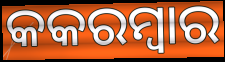
କକରମ୍ବାର